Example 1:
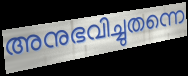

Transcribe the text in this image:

അനുഭവിച്ചുതന്നെ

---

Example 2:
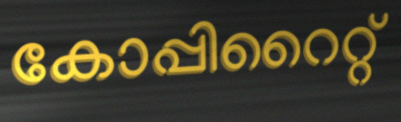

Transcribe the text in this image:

കോപ്പിറൈറ്റ്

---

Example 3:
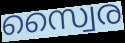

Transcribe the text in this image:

സ്വൈര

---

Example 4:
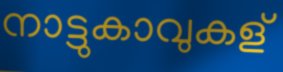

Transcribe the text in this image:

നാട്ടുകാവുകള്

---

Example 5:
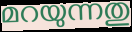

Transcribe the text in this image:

മറയുന്നതു